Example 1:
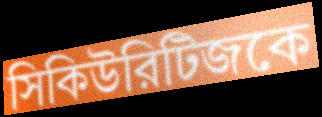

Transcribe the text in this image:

সিকিউরিটিজকে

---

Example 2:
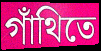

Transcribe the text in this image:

গাঁথিতে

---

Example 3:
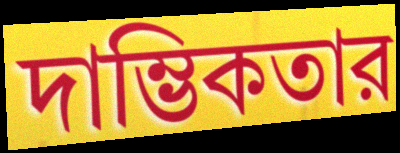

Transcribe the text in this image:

দাম্ভিকতার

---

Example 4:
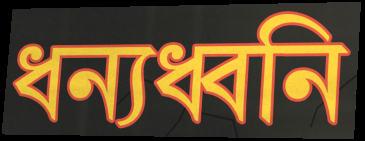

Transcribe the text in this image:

ধন্যধ্বনি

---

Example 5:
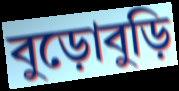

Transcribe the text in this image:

বুড়োবুড়ি